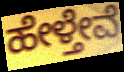
ಹೇಳ್ತೇವೆ